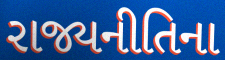
રાજ્યનીતિના